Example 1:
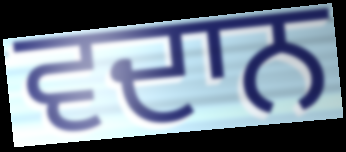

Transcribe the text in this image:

ਵਦਾਨ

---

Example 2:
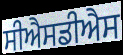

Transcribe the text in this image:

ਸੀਐਸਡੀਐਸ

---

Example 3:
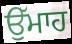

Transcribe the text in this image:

ਉੱਮਾਹ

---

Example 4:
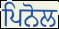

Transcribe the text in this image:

ਪਿਨੋਲ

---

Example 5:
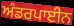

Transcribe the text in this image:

ਅੰਡਰਪਾਈਨ